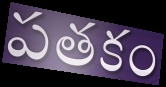
పతకం